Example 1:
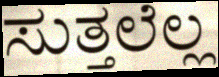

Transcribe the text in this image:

ಸುತ್ತಲೆಲ್ಲ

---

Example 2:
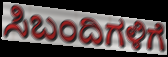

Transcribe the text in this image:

ಸಿಬಂದಿಗಳಿಗೆ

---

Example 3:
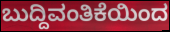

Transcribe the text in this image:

ಬುದ್ದಿವಂತಿಕೆಯಿಂದ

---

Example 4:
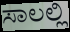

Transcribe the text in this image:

ಸಾಲಲ್ಲಿ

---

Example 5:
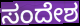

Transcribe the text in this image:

ಸಂದೇಶ